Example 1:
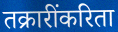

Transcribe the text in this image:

तक्रारींकरिता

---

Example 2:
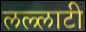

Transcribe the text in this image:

लल्लाटी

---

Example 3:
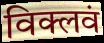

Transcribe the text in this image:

विक्लवं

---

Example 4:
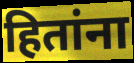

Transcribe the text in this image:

हितांना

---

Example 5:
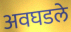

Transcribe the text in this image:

अवघडले